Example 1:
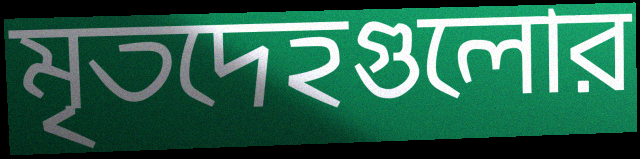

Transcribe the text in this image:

মৃতদেহগুলোর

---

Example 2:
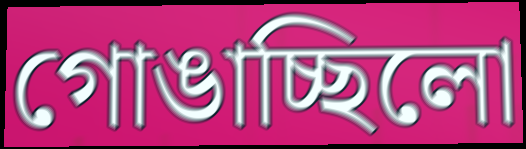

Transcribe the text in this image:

গোঙাচ্ছিলো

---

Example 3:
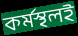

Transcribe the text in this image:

কর্মস্থলই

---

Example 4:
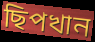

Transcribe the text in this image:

ছিপখান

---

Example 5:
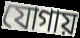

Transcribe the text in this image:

যোগায়